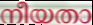
നീയതാ